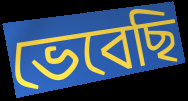
ভেবেছি